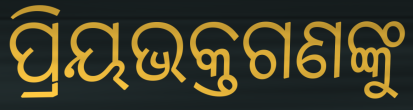
ପ୍ରିୟଭକ୍ତଗଣଙ୍କୁ